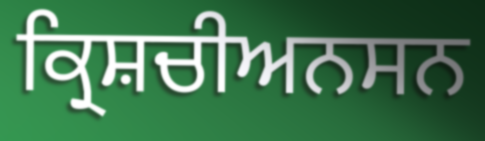
ਕ੍ਰਿਸ਼ਚੀਅਨਸਨ